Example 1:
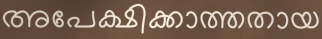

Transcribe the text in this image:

അപേക്ഷിക്കാത്തതായ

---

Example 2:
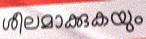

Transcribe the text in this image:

ശീലമാക്കുകയും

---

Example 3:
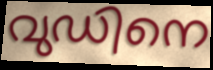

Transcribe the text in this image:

വുഡിനെ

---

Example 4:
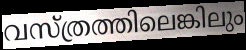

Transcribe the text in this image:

വസ്ത്രത്തിലെങ്കിലും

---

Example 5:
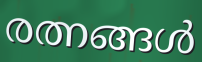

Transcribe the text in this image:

രത്നങ്ങൾ